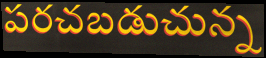
పరచబడుచున్న